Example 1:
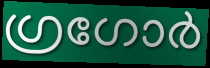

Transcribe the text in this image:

ഗ്രഗോർ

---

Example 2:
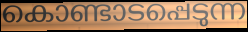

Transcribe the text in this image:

കൊണ്ടാടപ്പെടുന്ന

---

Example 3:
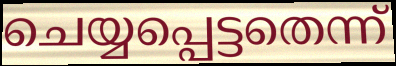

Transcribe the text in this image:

ചെയ്യപ്പെട്ടതെന്ന്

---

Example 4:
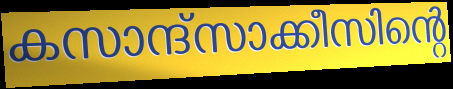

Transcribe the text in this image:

കസാന്ദ്സാക്കീസിന്റെ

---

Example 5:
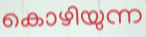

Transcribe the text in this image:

കൊഴിയുന്ന